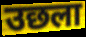
उछला